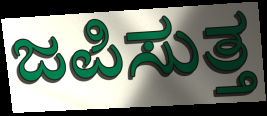
ಜಪಿಸುತ್ತ